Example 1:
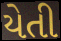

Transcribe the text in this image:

યેતી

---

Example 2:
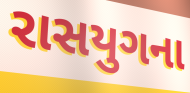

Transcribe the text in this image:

રાસયુગના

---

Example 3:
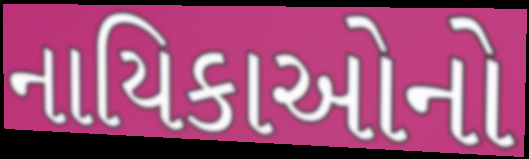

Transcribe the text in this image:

નાયિકાઓનો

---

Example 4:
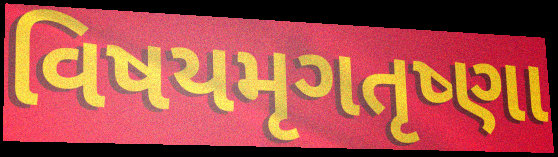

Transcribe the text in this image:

વિષયમૃગતૃષ્ણા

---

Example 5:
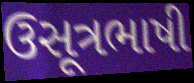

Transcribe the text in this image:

ઉસૂત્રભાષી